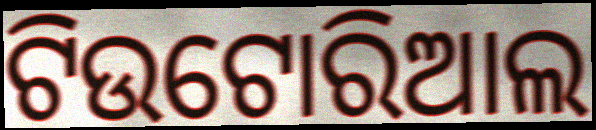
ଟିଉଟୋରିଆଲ